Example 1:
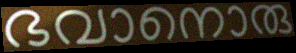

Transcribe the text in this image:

ഭവാനൊരു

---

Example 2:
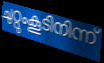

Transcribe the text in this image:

ചുറ്റുംകൂടിനിന്ന്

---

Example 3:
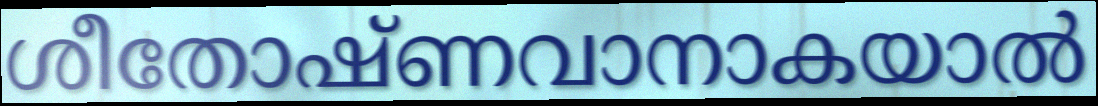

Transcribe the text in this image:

ശീതോഷ്ണവാനാകയാൽ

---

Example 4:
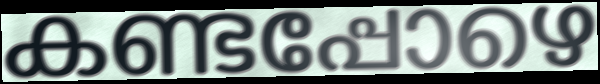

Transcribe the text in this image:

കണ്ടപ്പോഴെ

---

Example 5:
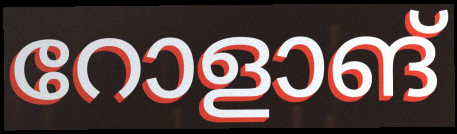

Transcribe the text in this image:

റോളാങ്